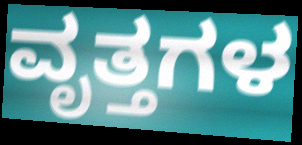
ವೃತ್ತಗಳ